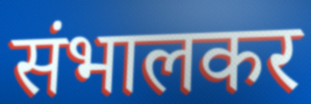
संभालकर